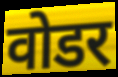
वोडर